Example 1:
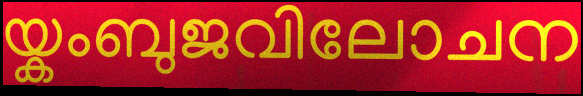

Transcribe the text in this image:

യ്കംബുജവിലോചന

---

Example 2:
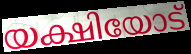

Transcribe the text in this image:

യക്ഷിയോട്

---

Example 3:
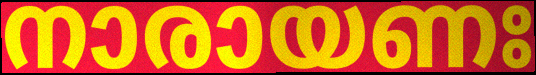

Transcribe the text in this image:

നാരായണഃ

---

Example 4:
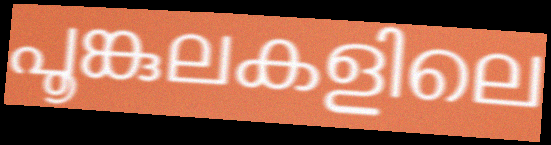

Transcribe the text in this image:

പൂങ്കുലകളിലെ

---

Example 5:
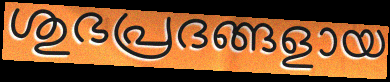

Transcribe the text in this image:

ശുഭപ്രദങ്ങളായ